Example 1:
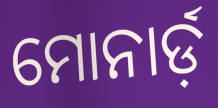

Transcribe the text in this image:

ମୋନାର୍ଡ଼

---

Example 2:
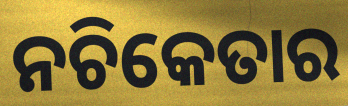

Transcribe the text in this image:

ନଚିକେତାର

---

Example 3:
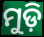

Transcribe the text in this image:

ମୁଡ଼ି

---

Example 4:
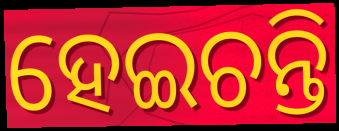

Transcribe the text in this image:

ହେଇଚନ୍ତି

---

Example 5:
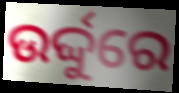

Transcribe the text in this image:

ଉର୍ଦ୍ଦୁରେ